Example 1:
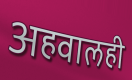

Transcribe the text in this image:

अहवालही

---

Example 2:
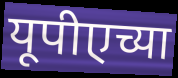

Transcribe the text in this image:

यूपीएच्या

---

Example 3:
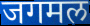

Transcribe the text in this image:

जगमल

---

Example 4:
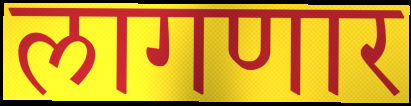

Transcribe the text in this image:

लागणार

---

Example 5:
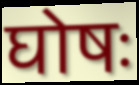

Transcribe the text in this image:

घोषः